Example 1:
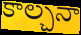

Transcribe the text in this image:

కాల్చనా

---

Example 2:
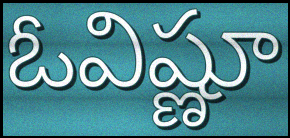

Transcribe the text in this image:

ఓవిష్ణూ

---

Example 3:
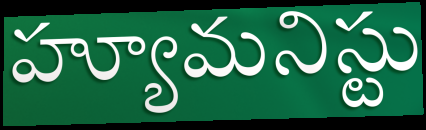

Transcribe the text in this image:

హ్యూమనిస్టు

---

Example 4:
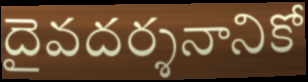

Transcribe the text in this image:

దైవదర్శనానికో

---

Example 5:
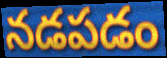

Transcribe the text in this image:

నడపడం